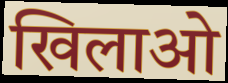
खिलाओ